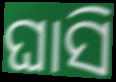
ଘାସି